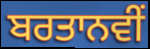
ਬਰਤਾਨਵੀਂ